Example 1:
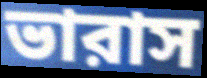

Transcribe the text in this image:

ভারাস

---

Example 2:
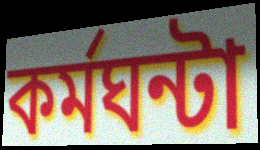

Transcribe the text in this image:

কর্মঘন্টা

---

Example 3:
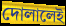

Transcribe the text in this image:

দোলালেই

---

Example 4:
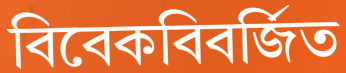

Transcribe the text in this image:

বিবেকবিবর্জিত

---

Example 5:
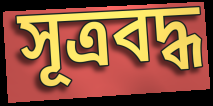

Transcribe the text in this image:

সূত্রবদ্ধ